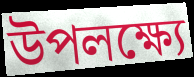
উপলক্ষ্যে